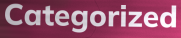
Categorized